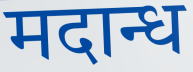
मदान्ध